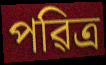
পৱিত্ৰ